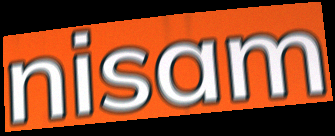
nisam